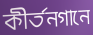
কীর্তনগানে